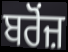
ਬਰੋਂਜ਼